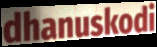
dhanuskodi